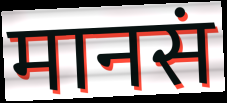
मानसं